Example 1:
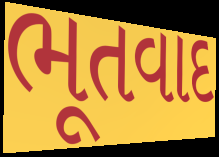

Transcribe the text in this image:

ભૂતવાદ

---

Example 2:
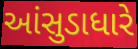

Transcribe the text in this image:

આંસુડાધારે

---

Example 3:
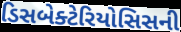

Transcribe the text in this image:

ડિસબેક્ટેરિયોસિસની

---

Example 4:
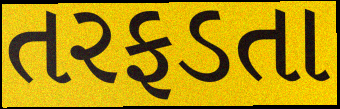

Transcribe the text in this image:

તરફડતા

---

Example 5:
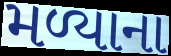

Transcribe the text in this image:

મળ્યાના